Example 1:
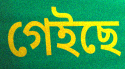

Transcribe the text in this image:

গেইছে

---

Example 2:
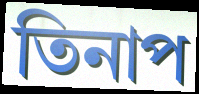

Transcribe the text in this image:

তিনাপ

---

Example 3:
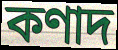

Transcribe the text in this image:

কণাদ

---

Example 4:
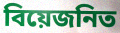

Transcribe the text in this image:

বিয়েজনিত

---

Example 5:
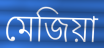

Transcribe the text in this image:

মেজিয়া